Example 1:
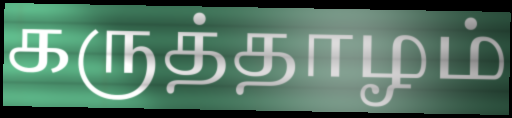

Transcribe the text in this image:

கருத்தாழம்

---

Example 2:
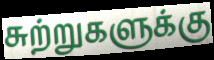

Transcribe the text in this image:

சுற்றுகளுக்கு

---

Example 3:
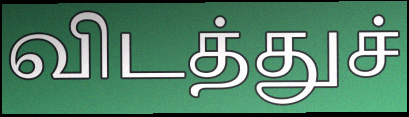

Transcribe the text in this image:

விடத்துச்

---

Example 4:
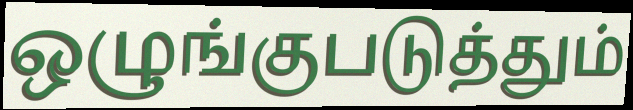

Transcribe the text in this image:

ஒழுங்குபடுத்தும்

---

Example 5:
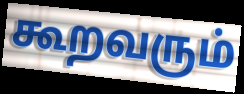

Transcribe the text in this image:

கூறவரும்